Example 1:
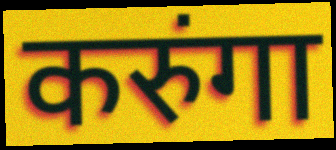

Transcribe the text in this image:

करुंगा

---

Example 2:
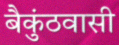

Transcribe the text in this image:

बैकुंठवासी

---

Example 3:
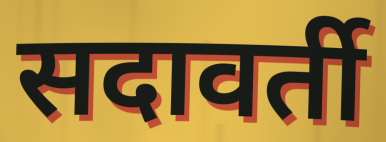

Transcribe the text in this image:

सदावर्ती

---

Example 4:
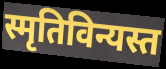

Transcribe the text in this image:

स्मृतिविन्यस्त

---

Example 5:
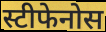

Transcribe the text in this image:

स्टीफेनोस